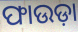
ଫାଉଡ଼ା